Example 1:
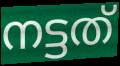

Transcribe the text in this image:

നട്ടത്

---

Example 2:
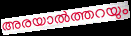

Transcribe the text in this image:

അരയാൽത്തറയും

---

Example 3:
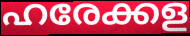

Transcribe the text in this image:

ഹരേക്കള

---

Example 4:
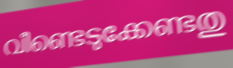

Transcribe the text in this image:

വീണ്ടെടുക്കേണ്ടതു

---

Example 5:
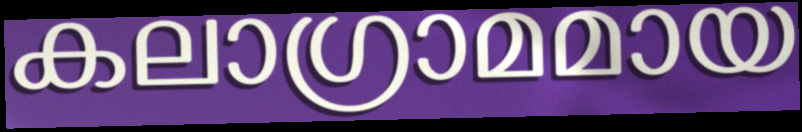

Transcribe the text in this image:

കലാഗ്രാമമായ